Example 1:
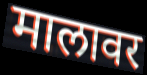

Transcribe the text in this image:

मालावर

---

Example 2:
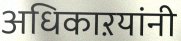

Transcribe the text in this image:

अधिकाऱयांनी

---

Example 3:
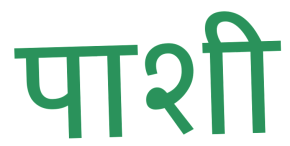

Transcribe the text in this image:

पाशी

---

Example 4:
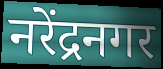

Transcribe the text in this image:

नरेंद्रनगर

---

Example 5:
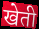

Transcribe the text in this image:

खेती